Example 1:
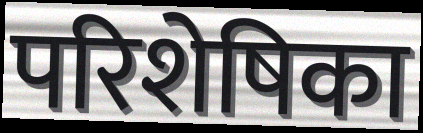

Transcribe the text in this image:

परिशेषिका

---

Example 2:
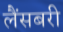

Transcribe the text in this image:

लैंसबरी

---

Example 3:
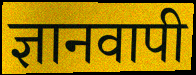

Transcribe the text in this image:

ज्ञानवापी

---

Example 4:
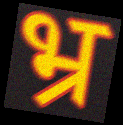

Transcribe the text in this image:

भ्र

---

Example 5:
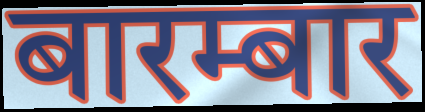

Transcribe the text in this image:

बारम्बार